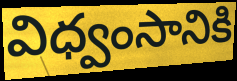
విధ్వంసానికి